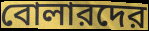
বোলারদের